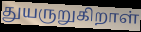
துயருறுகிறாள்